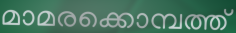
മാമരക്കൊമ്പത്ത്